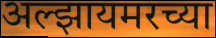
अल्झायमरच्या